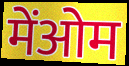
मेंओम